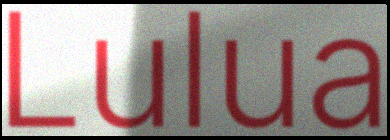
Lulua